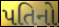
પતિનો